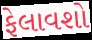
ફેલાવશો